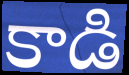
కాడి